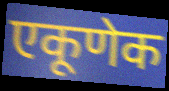
एकूणेक